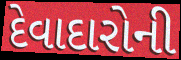
દેવાદારોની